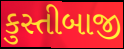
કુસ્તીબાજી